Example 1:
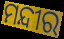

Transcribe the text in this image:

ମନ୍ଦୀର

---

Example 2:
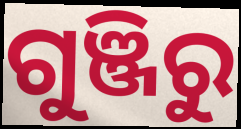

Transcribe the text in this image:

ଗୁଞ୍ଜିରୁ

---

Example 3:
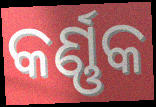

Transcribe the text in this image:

କର୍ଣ୍ଣକ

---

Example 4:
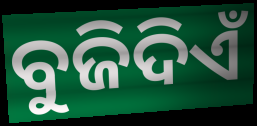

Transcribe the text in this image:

ବୁଜିଦିଏଁ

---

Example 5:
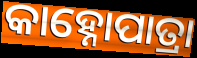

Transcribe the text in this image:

କାହ୍ନୋପାତ୍ରା